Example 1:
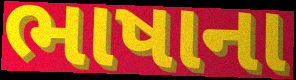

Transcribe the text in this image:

ભાષાના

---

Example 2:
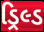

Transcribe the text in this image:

ડ્રિલ્ડ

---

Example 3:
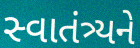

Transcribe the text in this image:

સ્વાતંત્ર્યને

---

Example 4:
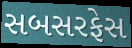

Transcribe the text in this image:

સબસરફેસ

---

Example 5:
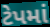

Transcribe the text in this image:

ટેપમાં